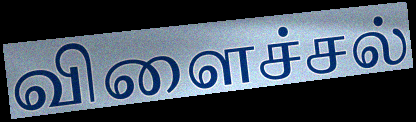
விளைச்சல்